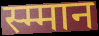
स्म्मान